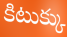
కిటుక్కు